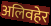
अलिवहेर